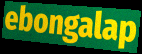
ebongalap